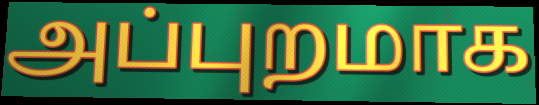
அப்புறமாக